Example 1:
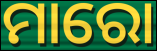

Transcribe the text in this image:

ମାରୋ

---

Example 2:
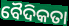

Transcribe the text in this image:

ବୈଦିକତା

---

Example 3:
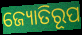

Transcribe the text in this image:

ଜ୍ୟୋତିରୂପ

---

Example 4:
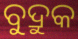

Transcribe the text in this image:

ବୁଦ୍ରୁକ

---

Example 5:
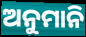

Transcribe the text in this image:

ଅନୁମାନି